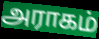
அராகம்